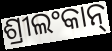
ଶ୍ରୀଲଂକାନ୍